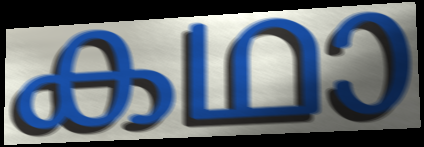
കഥാ